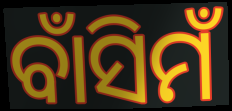
ବାଁସିମଁ